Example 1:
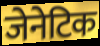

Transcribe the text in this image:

जेनेटिक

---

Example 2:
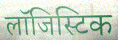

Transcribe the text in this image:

लॉजिस्टिक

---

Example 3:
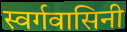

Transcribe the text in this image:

स्वर्गवासिनी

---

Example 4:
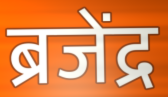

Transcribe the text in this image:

ब्रजेंद्र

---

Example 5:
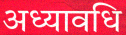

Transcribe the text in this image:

अध्यावधि